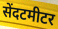
सेंदटमीटर